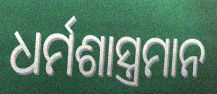
ଧର୍ମଶାସ୍ତ୍ରମାନ